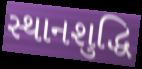
સ્થાનશુદ્ધિ